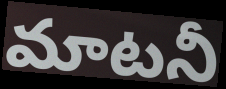
మాటనీ